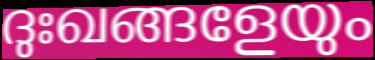
ദുഃഖങ്ങളേയും